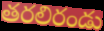
తరలిరండు